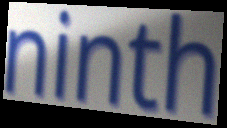
ninth